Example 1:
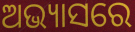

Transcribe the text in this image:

ଅଭ୍ୟାସରେ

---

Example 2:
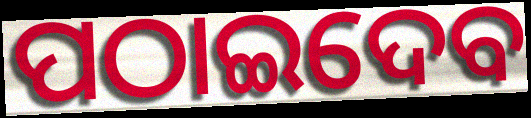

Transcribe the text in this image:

ପଠାଇଦେବ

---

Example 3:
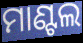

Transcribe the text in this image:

ମାଣ୍ଟଲ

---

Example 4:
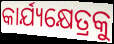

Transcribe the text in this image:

କାର୍ଯ୍ୟକ୍ଷେତ୍ରକୁ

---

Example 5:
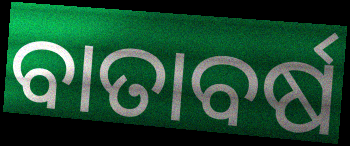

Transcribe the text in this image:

ବାତାବର୍ଷ